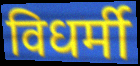
विधर्मी